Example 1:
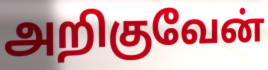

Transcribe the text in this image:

அறிகுவேன்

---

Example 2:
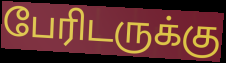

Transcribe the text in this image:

பேரிடருக்கு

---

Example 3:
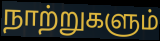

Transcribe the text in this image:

நாற்றுகளும்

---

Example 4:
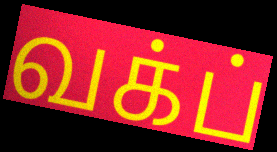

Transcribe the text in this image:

வக்ப்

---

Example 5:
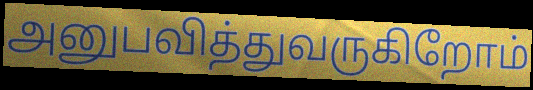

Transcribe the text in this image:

அனுபவித்துவருகிறோம்